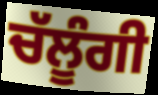
ਚੱਲੂੰਗੀ